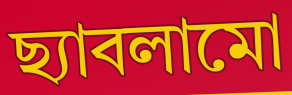
ছ্যাবলামো